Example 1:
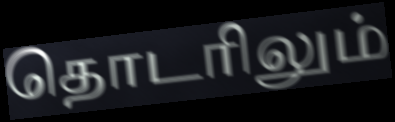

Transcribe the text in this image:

தொடரிலும்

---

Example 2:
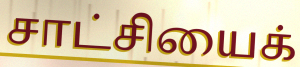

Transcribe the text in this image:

சாட்சியைக்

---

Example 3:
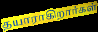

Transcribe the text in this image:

தயாராகிறார்கள்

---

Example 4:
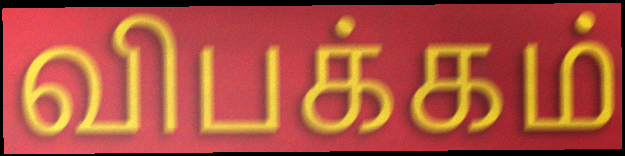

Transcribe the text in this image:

விபக்கம்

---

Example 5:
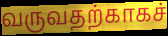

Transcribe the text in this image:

வருவதற்காகச்